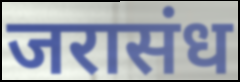
जरासंध